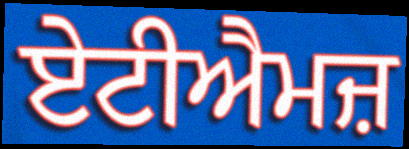
ਏਟੀਐਮਜ਼